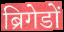
ब्रिगेडों